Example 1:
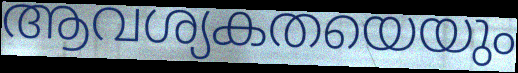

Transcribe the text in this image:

ആവശ്യകതയെയും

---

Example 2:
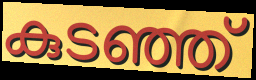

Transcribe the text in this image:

കുടഞ്ഞ്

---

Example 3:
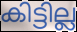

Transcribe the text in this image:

കിട്ടില്ല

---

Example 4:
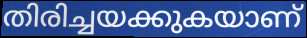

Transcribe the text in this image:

തിരിച്ചയക്കുകയാണ്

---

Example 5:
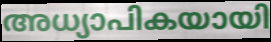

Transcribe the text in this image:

അധ്യാപികയായി